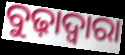
ବୁଢ଼ାଦ୍ୱାରା